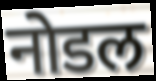
नोडल